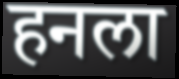
हनला